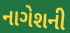
નાગેશની